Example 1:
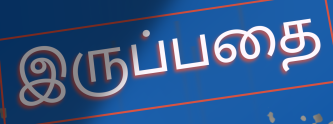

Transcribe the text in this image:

இருப்பதை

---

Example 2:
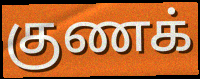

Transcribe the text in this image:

குணக்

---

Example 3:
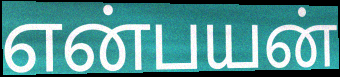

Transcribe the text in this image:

என்பயன்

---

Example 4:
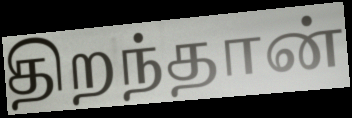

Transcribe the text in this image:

திறந்தான்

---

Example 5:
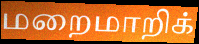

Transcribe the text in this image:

மறைமாறிக்